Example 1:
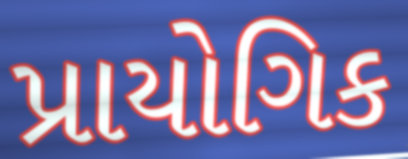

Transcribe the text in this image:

પ્રાયોગિક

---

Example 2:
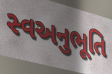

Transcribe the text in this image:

સ્વઅનુભૂતિ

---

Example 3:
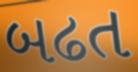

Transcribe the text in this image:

બઢત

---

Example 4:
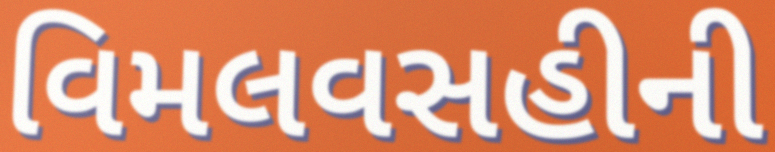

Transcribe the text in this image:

વિમલવસહીની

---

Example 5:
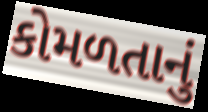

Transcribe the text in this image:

કોમળતાનું